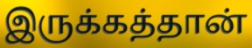
இருக்கத்தான்